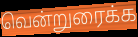
வென்றுரைக்க